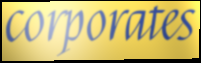
corporates